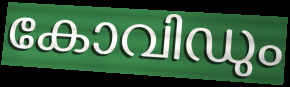
കോവിഡും